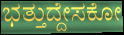
ಭತ್ತುದ್ದೇಸಕೋ